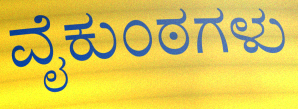
ವೈಕುಂಠಗಳು